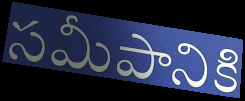
సమీపానికి